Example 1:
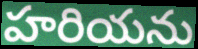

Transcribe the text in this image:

హరియను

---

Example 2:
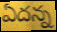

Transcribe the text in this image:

ఏదన్న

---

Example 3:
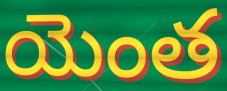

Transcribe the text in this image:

యెంత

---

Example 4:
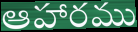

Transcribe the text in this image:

ఆహారము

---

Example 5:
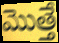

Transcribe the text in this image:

మొత్తే